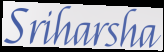
Sriharsha